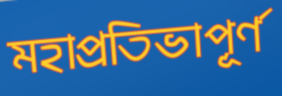
মহাপ্রতিভাপূর্ণ